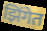
झिंगेत